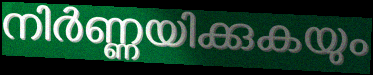
നിർണ്ണയിക്കുകയും